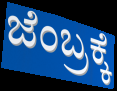
ಜೆಂಬ್ರಕ್ಕೆ